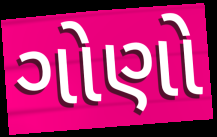
ગોણો